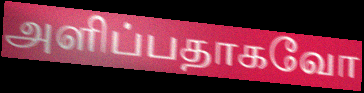
அளிப்பதாகவோ